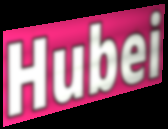
Hubei